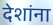
देशांना